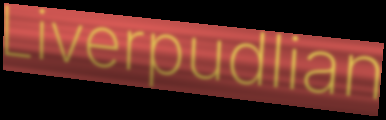
Liverpudlian